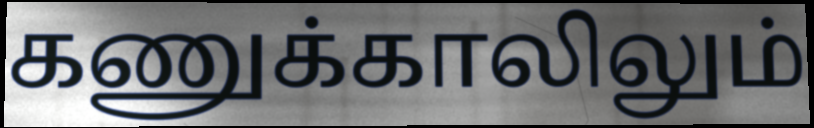
கணுக்காலிலும்